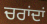
ਚਰਾਂਦਾਂ